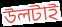
উলটাই